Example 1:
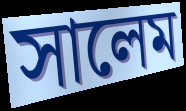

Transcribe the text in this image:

সালেম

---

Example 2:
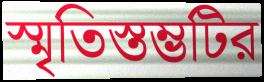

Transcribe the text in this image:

স্মৃতিস্তম্ভটির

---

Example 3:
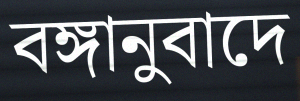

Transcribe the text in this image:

বঙ্গানুবাদে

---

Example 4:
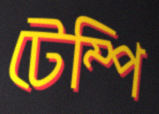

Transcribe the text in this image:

টেম্পি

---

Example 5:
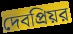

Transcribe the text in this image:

দেবপ্রিয়র